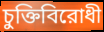
চুক্তিবিরোধী